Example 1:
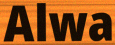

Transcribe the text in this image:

Alwa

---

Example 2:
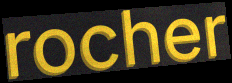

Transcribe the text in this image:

rocher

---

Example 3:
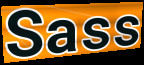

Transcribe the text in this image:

Sass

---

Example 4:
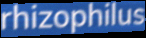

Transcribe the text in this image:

rhizophilus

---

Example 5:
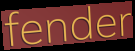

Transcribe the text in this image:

fender